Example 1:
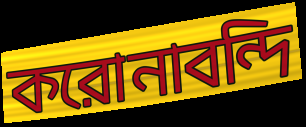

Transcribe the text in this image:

করোনাবন্দি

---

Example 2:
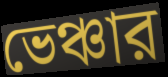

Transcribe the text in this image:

ভেঞ্চার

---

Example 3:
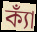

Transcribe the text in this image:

ক্যাঁ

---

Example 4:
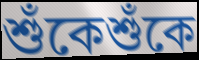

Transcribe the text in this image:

শুঁকেশুঁকে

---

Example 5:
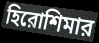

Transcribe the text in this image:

হিরোশিমার